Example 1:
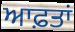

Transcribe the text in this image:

ਆਫ਼ਤਾਂ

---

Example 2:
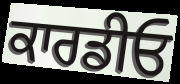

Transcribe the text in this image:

ਕਾਰਡੀਓ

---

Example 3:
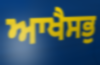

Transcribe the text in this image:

ਆਖੈਸਭੁ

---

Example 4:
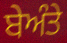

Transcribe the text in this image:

ਬੇਅੰਤੇ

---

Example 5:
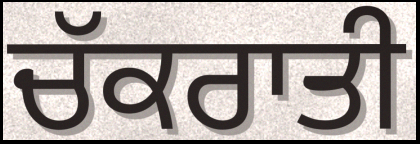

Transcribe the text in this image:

ਚੱਕਰਾਤੀ